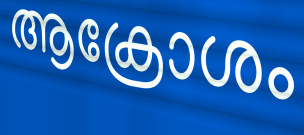
ആക്രോശം